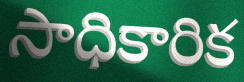
సాధికారిక